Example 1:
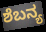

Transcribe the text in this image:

ಶೆಬನ್ಯ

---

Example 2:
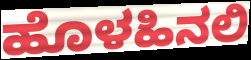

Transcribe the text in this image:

ಹೊಳಹಿನಲಿ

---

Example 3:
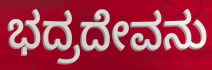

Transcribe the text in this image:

ಭದ್ರದೇವನು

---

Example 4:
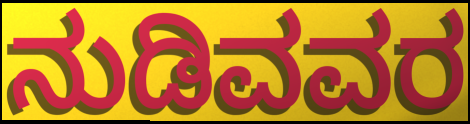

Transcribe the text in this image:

ನುಡಿವವರ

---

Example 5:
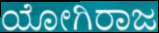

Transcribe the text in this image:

ಯೋಗಿರಾಜ